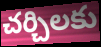
చర్చిలకు